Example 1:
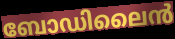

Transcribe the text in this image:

ബോഡിലൈൻ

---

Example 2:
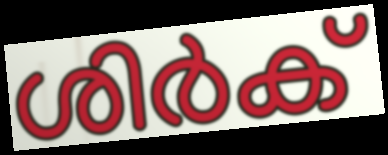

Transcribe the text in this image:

ശിർക്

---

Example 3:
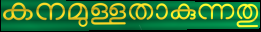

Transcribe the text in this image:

കനമുള്ളതാകുന്നതു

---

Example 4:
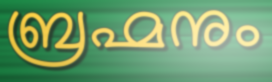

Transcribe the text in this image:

ബ്രഹ്മനും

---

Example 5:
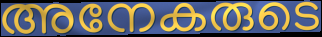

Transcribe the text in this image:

അനേകരുടെ